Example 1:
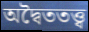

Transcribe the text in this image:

অদ্বৈততত্ত্ব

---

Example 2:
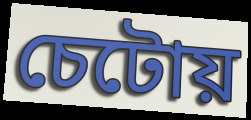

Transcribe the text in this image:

চেটোয়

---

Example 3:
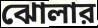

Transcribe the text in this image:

ঝোলার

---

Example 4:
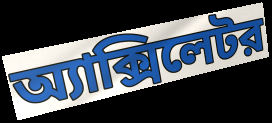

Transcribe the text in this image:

অ্যাক্সিলেটর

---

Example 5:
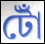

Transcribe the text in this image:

টোঁ